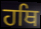
ਹਥਿ